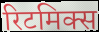
रिटमिक्स